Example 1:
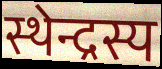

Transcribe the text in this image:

स्थेन्द्रस्य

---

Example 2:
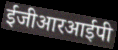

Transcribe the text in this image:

ईजीआरआईपी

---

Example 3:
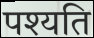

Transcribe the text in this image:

पश्यति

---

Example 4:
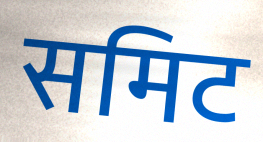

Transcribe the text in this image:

समिट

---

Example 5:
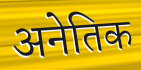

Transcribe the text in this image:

अनेतिक